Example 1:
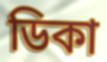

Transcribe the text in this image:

ডিকা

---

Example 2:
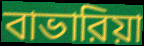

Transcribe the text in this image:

বাভারিয়া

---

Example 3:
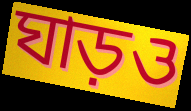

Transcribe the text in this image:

ঘাড়ও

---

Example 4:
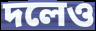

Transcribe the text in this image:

দলেও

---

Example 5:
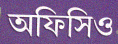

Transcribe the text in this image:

অফিসিও